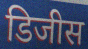
डिजीस